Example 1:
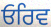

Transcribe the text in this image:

ਓਰਿਵ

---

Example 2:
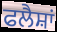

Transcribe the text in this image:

ਫਲੈਸ਼ਾਂ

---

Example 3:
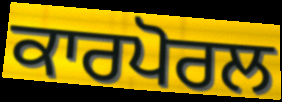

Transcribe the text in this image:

ਕਾਰਪੋਰਲ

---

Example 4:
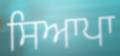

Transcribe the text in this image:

ਸਿਆਪਾ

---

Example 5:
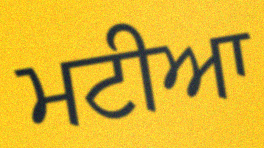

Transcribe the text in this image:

ਮਟੀਆ